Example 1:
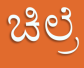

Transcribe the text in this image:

ಚಿಲ್ರೆ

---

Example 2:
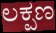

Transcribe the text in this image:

ಲಕ್ಪಣ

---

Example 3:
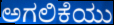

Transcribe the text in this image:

ಅಗಲಿಕೆಯು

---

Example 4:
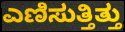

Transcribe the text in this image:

ಎಣಿಸುತ್ತಿತ್ತು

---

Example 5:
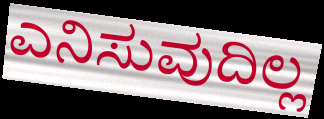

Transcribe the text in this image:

ಎನಿಸುವುದಿಲ್ಲ